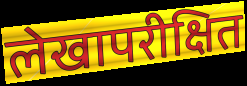
लेखापरीक्षित